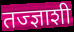
तज्ज्ञाशी